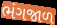
ભંગજાળ